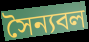
সৈন্যবল